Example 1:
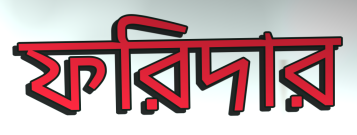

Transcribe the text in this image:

ফরিদার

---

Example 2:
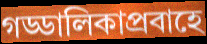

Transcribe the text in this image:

গড্ডালিকাপ্রবাহে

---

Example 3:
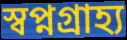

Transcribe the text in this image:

স্বপ্নগ্রাহ্য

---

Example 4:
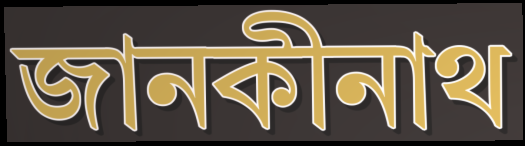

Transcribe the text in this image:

জানকীনাথ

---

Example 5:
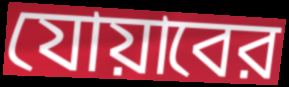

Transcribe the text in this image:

যোয়াবের